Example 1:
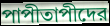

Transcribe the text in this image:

পাপীতাপীদের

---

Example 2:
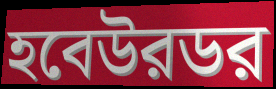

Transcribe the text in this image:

হবেউরডর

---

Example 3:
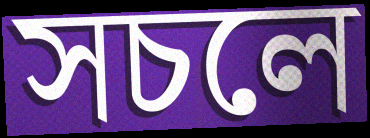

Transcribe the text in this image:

সচলে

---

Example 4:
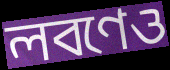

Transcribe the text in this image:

লবণেও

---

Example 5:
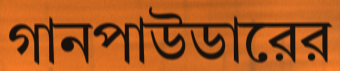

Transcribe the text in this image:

গানপাউডারের